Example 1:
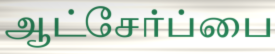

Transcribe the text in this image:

ஆட்சேர்ப்பை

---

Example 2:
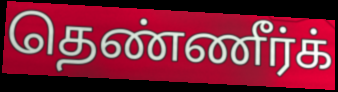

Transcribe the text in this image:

தெண்ணீர்க்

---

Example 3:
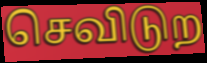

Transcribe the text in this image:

செவிடுற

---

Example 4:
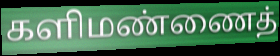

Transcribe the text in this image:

களிமண்ணைத்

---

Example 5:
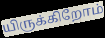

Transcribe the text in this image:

யிருக்கிறோம்